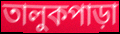
তালুকপাড়া